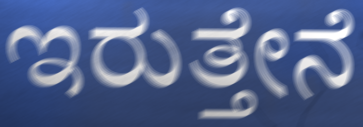
ಇರುತ್ತೇನೆ